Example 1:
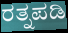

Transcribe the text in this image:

ರತ್ನಪಡಿ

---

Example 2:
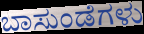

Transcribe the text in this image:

ಬಾಸುಂಡೆಗಳು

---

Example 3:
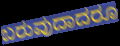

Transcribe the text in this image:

ಬರುವುದಾದರೂ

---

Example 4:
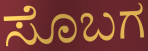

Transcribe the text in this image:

ಸೊಬಗ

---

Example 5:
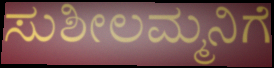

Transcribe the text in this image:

ಸುಶೀಲಮ್ಮನಿಗೆ